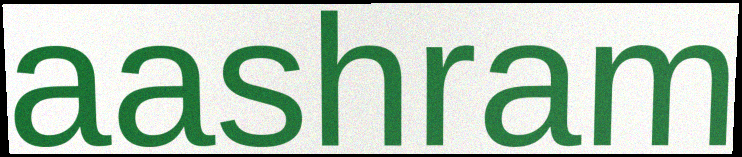
aashram